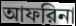
আফরিনা